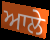
ਆਲੇ